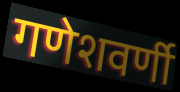
गणेशवर्णी